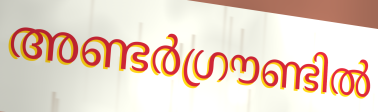
അണ്ടർഗ്രൗണ്ടിൽ